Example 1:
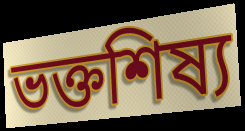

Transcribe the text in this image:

ভক্তশিষ্য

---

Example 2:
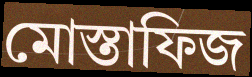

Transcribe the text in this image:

মোস্তাফিজ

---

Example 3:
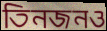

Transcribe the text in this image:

তিনজনও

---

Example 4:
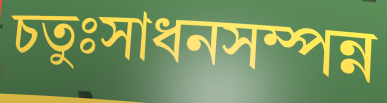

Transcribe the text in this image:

চতুঃসাধনসম্পন্ন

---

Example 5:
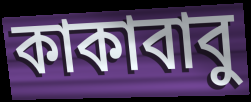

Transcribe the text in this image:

কাকাবাবু